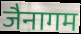
जैनागम